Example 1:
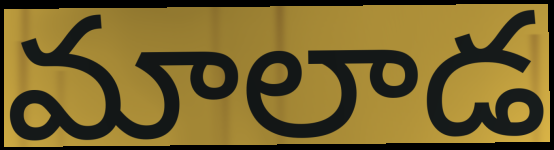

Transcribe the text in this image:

మాలాడ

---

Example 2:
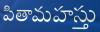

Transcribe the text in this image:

పితామహస్తు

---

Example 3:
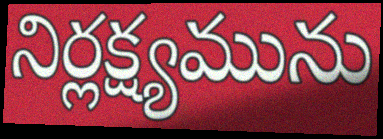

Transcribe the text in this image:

నిర్లక్ష్యమును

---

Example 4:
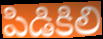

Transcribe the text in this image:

పిడికిలి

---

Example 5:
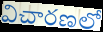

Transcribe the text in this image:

విచారణలో